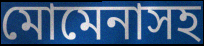
মোমেনাসহ